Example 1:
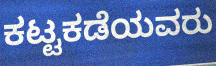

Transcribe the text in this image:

ಕಟ್ಟಕಡೆಯವರು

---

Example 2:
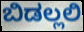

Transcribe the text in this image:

ಬಿಡಲ್ಲಲಿ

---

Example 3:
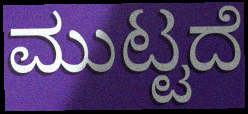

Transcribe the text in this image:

ಮುಟ್ಟದೆ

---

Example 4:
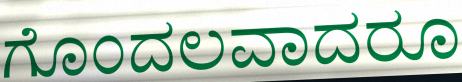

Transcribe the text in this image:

ಗೊಂದಲವಾದರೂ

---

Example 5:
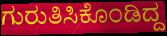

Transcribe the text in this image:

ಗುರುತಿಸಿಕೊಂಡಿದ್ದ